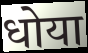
धोया